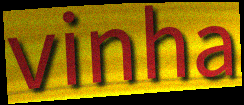
vinha